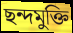
ছন্দমুক্তি